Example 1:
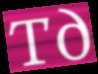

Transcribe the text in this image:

Td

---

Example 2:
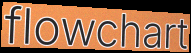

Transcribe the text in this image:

flowchart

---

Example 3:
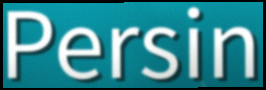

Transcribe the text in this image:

Persin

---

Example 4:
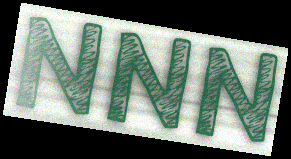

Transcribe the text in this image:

NNN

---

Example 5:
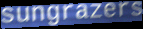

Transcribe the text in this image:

sungrazers